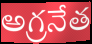
అగ్రనేత